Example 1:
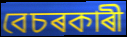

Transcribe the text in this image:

বেচৰকাৰী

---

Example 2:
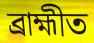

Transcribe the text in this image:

ব্ৰাহ্মীত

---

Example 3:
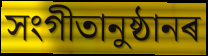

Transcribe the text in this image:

সংগীতানুষ্ঠানৰ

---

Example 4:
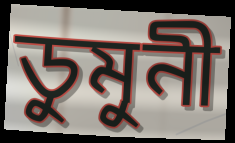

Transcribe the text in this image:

ডুমুনী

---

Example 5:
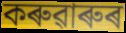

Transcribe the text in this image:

কৰুৱাৰুৰ